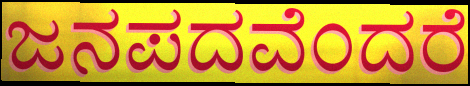
ಜನಪದವೆಂದರೆ